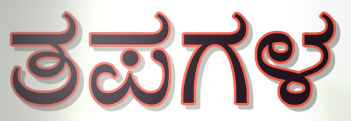
ತಪಗಳ